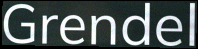
Grendel